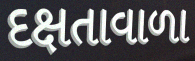
દક્ષતાવાળા